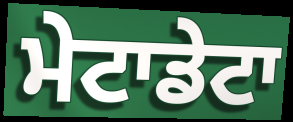
ਮੇਟਾਡੇਟਾ